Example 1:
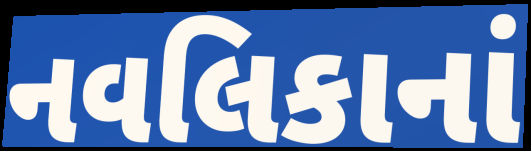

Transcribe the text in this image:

નવલિકાનાં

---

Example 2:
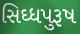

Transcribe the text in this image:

સિઘ્ધપુરૂષ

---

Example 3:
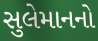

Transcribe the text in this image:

સુલેમાનનો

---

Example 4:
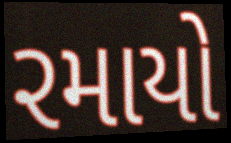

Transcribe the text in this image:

રમાયો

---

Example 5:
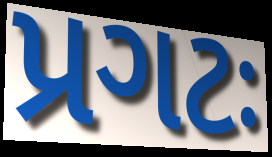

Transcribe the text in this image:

પ્રગટઃ